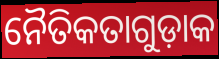
ନୈତିକତାଗୁଡ଼ାକ